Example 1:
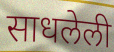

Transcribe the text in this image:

साधलेली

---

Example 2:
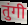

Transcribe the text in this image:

तुंगी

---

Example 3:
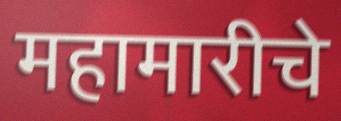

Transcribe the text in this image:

महामारीचे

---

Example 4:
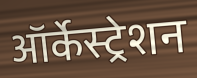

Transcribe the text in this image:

ऑर्केस्ट्रेशन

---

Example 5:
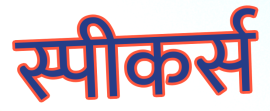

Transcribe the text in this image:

स्पीकर्स